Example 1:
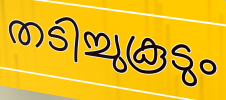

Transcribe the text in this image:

തടിച്ചുകൂടും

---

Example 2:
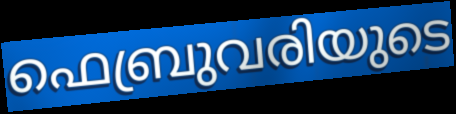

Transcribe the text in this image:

ഫെബ്രുവരിയുടെ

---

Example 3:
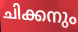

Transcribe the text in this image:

ചിക്കനും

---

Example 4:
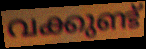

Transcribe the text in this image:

വക്കുണ്ട്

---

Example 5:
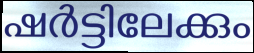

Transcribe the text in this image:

ഷർട്ടിലേക്കും